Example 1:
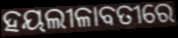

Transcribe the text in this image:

ହୟଲୀଳାବତୀରେ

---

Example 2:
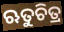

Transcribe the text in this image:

ଋତୁଚିତ୍ର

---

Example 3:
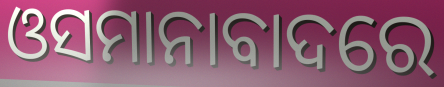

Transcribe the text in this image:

ଓସମାନାବାଦରେ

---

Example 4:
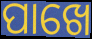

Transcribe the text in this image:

ପାଖେ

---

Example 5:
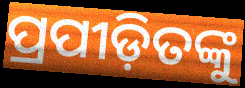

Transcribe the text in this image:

ପ୍ରପୀଡ଼ିତଙ୍କୁ